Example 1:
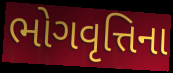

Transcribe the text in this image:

ભોગવૃત્તિના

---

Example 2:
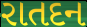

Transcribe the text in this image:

રાતદન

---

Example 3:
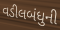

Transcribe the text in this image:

વડીલબંધુની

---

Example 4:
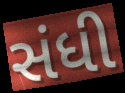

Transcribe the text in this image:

સંધી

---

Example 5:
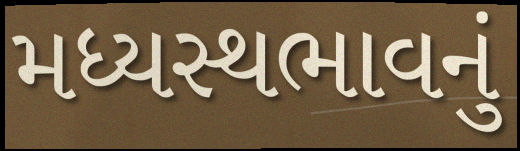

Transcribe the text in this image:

મધ્યસ્થભાવનું